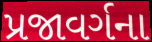
પ્રજાવર્ગના